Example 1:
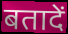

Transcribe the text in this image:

बतादें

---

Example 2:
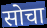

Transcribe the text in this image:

सोचा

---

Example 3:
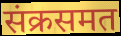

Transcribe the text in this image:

संक्रसमत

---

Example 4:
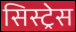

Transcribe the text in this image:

सिस्ट्रेस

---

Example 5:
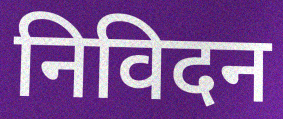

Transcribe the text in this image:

निविदन